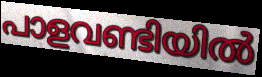
പാളവണ്ടിയിൽ